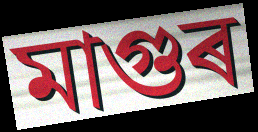
মাগুৰ